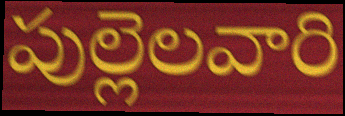
పుల్లెలవారి